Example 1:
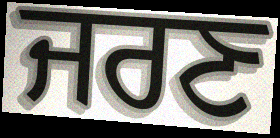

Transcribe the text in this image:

ਜਰਣ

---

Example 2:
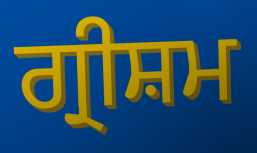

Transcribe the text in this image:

ਗ੍ਰੀਸ਼ਮ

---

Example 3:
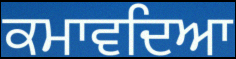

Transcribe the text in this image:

ਕਮਾਵਦਿਆ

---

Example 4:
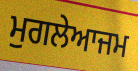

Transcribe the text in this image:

ਮੁਗਲੇਆਜਮ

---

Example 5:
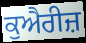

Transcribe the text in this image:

ਕੁਐਰੀਜ਼